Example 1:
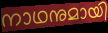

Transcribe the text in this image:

നാഥനുമായി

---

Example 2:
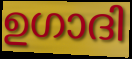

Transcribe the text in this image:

ഉഗാദി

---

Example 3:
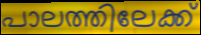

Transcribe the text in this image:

പാലത്തിലേക്ക്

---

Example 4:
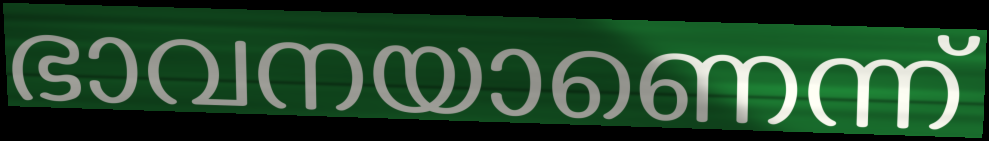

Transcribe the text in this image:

ഭാവനയാണെന്ന്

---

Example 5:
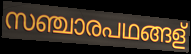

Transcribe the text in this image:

സഞ്ചാരപഥങ്ങള്